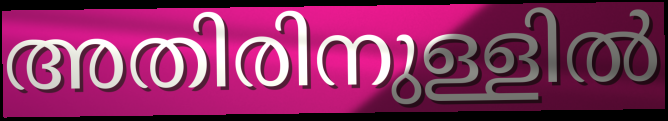
അതിരിനുള്ളിൽ